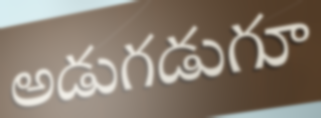
అడుగడుగూ